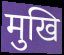
मुखि